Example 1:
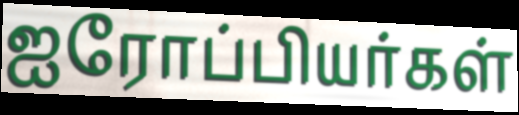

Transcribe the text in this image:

ஐரோப்பியர்கள்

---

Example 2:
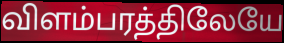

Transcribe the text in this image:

விளம்பரத்திலேயே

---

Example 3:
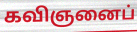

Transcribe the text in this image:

கவிஞனைப்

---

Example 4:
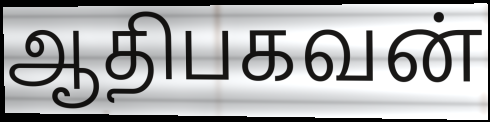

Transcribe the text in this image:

ஆதிபகவன்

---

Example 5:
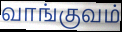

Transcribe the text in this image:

வாங்குவம்